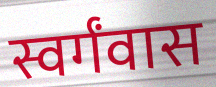
स्वर्गंवास